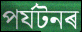
পৰ্যটনৰ